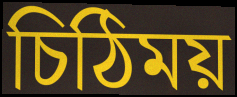
চিঠিময়